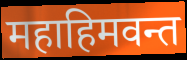
महाहिमवन्त